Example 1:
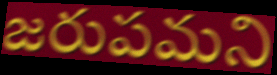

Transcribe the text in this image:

జరుపమని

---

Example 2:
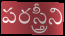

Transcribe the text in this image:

పరస్త్రీని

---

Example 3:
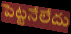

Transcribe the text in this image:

పెట్టనేలేదు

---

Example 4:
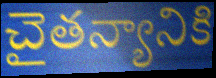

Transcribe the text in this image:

చైతన్యానికి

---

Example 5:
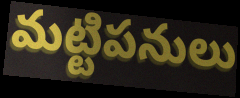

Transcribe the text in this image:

మట్టిపనులు